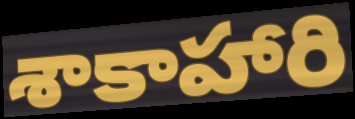
శాకాహారి